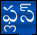
ఫ్లస్